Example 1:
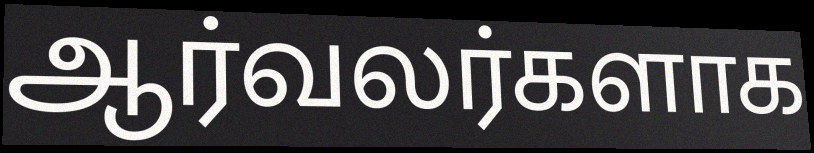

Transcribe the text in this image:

ஆர்வலர்களாக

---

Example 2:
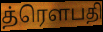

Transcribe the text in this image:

த்ரௌபதி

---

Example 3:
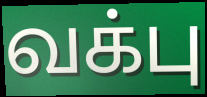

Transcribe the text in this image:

வக்பு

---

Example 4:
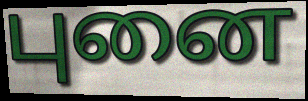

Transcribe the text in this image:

புனை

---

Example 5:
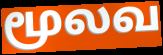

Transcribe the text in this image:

மூலவ